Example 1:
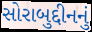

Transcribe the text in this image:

સોરાબુદ્દીનનું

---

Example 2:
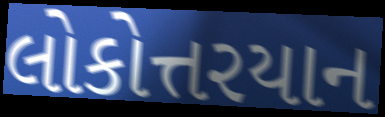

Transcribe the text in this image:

લોકોત્તરયાન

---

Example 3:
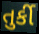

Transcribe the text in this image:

તુર્કી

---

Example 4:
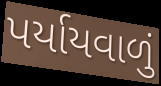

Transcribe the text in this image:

પર્યાયવાળું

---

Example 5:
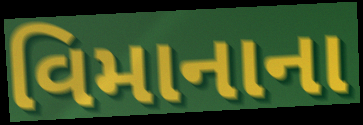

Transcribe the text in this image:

વિમાનાના